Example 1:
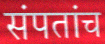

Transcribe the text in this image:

संपतांच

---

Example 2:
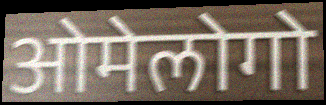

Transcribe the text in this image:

ओमेलोगो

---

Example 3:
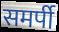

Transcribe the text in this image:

समर्पी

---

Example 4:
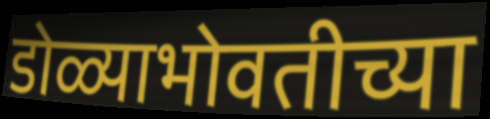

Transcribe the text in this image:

डोळ्याभोवतीच्या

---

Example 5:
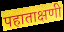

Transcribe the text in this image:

पहाताक्षणी